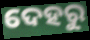
ଦେହରୁ